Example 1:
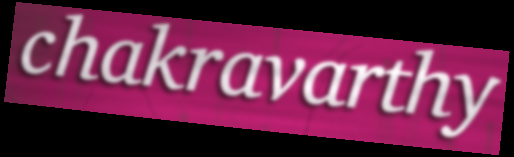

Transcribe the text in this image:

chakravarthy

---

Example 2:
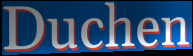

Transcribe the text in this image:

Duchen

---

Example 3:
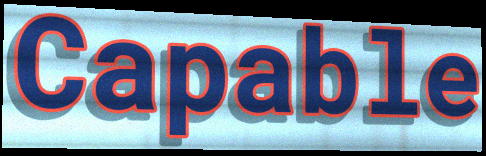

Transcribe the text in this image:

Capable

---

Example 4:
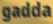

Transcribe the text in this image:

gadda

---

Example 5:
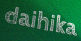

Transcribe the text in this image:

daihika